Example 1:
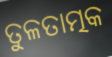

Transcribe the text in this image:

ତୁଳତାତ୍ମକ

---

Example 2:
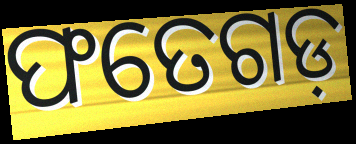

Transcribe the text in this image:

ଫତେଗଡ଼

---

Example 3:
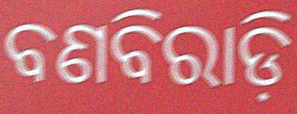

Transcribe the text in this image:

ବଣବିରାଡ଼ି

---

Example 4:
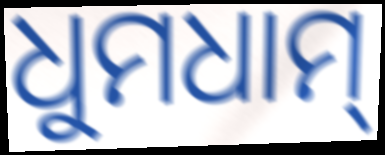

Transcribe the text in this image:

ଧୁମଧାମ୍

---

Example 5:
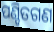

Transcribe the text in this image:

ପଣ୍ଡିତଗଣ